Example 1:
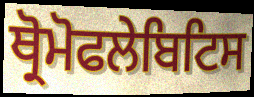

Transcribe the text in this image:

ਥ੍ਰੋਮੋਫਲੇਬਿਟਿਸ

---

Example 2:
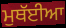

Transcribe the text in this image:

ਮੁਥੱਈਆ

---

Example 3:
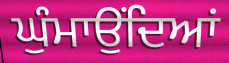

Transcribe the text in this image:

ਘੁੰਮਾਉਂਦਿਆਂ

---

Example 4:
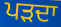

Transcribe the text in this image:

ਪੜਦਾ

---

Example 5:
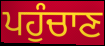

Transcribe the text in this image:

ਪਹੁੰਚਾਣ